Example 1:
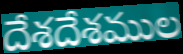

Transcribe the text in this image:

దేశదేశముల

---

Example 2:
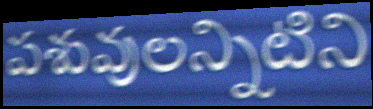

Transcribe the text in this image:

పశువులన్నిటిని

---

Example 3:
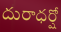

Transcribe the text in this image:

దురాధర్షో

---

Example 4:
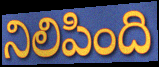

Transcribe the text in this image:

నిలిపింది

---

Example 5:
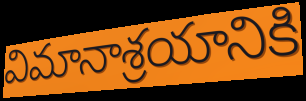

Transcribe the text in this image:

విమానాశ్రయానికి